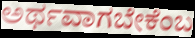
ಅರ್ಥವಾಗಬೇಕೆಂಬ